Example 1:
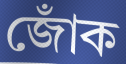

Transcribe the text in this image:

জোঁক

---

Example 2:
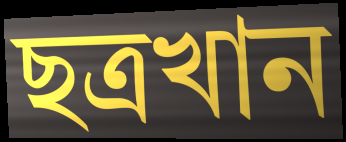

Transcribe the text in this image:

ছত্রখান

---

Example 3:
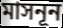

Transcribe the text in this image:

মাসনূন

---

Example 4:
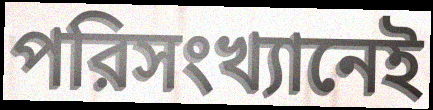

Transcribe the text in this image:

পরিসংখ্যানেই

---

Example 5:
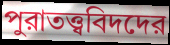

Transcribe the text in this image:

পুরাতত্ত্ববিদদের